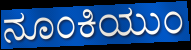
ನೂಂಕಿಯುಂ